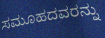
ಸಮೂಹದವರನ್ನು